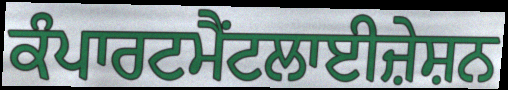
ਕੰਪਾਰਟਮੈਂਟਲਾਈਜ਼ੇਸ਼ਨ